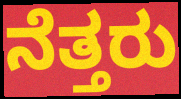
ನೆತ್ತರು